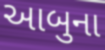
આબુના